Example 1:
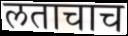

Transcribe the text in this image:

लताचाच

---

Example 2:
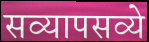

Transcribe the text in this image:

सव्यापसव्ये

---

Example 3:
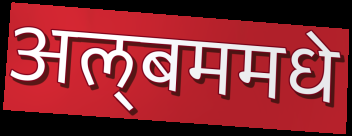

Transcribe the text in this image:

अल्बममधे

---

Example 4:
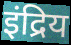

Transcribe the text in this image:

इंद्रिय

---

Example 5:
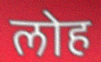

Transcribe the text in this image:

लोह